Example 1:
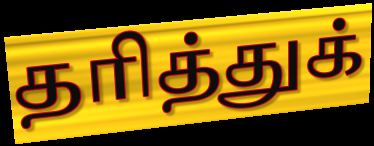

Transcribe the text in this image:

தரித்துக்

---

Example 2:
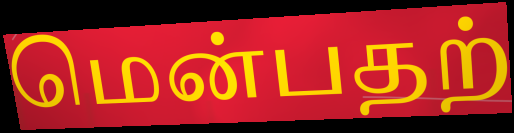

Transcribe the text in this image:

மென்பதற்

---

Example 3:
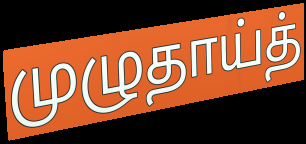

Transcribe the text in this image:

முழுதாய்த்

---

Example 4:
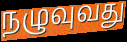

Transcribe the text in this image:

நழுவுவது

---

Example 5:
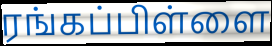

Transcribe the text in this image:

ரங்கப்பிள்ளை